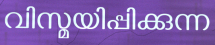
വിസ്മയിപ്പിക്കുന്ന